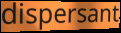
dispersant